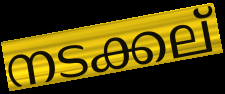
നടക്കല്